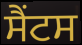
ਸੈਂਟਸ